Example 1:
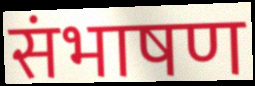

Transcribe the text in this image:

संभाषण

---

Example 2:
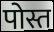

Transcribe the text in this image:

पोस्त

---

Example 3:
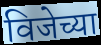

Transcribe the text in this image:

विजेच्या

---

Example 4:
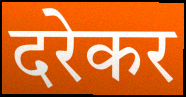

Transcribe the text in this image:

दरेकर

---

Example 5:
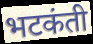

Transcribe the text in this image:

भटकंती